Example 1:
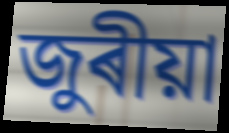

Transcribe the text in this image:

জুৰীয়া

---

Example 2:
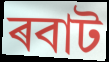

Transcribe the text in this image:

ৰবাট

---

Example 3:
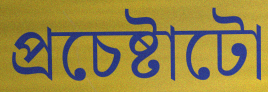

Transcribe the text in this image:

প্ৰচেষ্টাটো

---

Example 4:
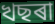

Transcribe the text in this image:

খছৰা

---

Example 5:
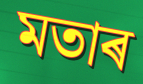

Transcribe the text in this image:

মতাৰ